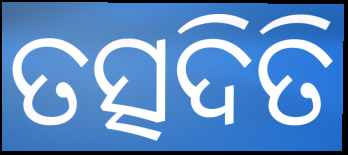
ତତ୍ସଦିତି